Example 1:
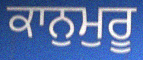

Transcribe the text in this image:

ਕਾਨੁਮੁਰੂ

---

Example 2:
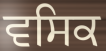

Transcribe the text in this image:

ਵਸਿਕ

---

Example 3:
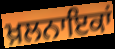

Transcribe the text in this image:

ਖ਼ਲਨਾਇਕਾਂ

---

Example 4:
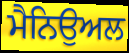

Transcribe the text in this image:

ਮੈਨਿਉਅਲ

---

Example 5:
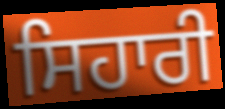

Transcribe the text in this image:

ਸਿਹਾਰੀ